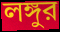
লঙ্গুর